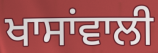
ਖਾਸਾਂਵਾਲੀ